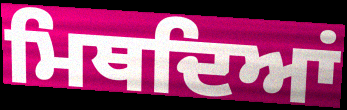
ਮਿਥਦਿਆਂ